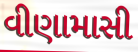
વીણામાસી